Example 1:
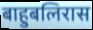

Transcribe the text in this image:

बाहुबलिरास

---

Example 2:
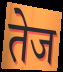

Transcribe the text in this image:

तेज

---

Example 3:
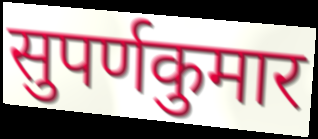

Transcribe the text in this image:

सुपर्णकुमार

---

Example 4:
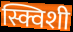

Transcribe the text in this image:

स्क्विशी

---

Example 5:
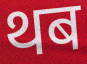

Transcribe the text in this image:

थब